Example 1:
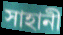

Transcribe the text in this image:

সাহানী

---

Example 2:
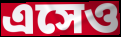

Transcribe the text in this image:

এসেও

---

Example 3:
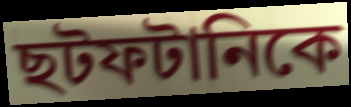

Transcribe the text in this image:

ছটফটানিকে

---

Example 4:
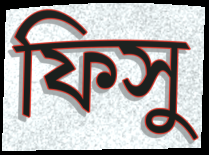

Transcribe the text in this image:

ফিসু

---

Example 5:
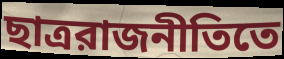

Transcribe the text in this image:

ছাত্ররাজনীতিতে